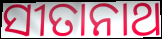
ସୀତାନାଥ